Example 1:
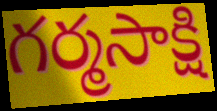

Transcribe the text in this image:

గర్మసాక్షి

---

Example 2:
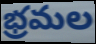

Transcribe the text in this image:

భ్రమల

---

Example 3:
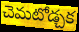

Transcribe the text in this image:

చెమటోడ్చక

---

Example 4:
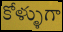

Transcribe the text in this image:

కోళ్ళుగా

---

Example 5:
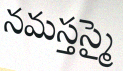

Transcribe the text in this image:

నమస్తస్మై